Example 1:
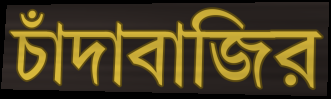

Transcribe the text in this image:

চাঁদাবাজির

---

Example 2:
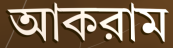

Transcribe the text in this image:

আকরাম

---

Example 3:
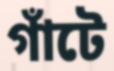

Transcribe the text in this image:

গাঁটে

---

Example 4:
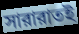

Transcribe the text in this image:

সারারাতই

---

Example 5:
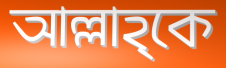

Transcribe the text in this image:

আল্লাহ্কে